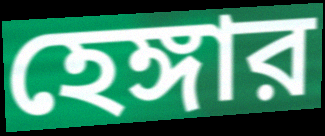
হেঙ্গার